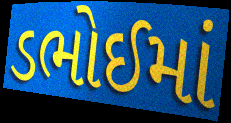
ડભોઈમાં